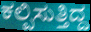
ಕಲ್ಪಿಸುತ್ತಿದ್ದ